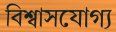
বিশ্বাসযোগ্য